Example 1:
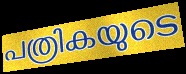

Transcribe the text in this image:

പത്രികയുടെ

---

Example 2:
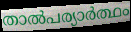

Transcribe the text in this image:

താൽപര്യാർത്ഥം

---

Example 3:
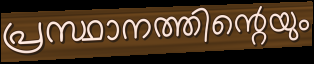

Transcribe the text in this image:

പ്രസ്ഥാനത്തിന്റെയും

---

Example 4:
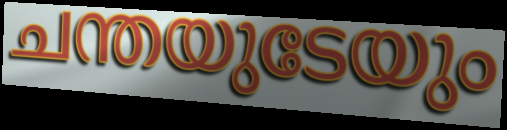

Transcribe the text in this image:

ചന്തയുടേയും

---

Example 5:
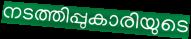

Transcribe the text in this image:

നടത്തിപ്പുകാരിയുടെ